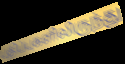
பதிப்புகளிலிருந்து